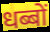
धब्बों